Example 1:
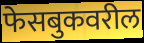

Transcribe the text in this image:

फेसबुकवरील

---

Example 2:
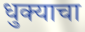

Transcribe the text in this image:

धुक्याचा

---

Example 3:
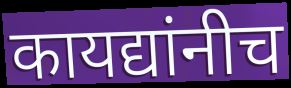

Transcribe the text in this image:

कायद्यांनीच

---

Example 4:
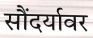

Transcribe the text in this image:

सौंदर्यावर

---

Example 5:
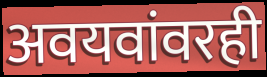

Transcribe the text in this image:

अवयवांवरही